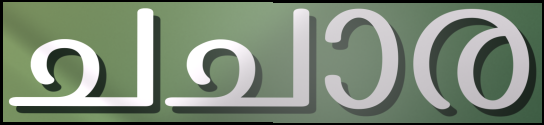
ചചാര